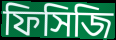
ফিসিজি